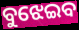
ବୁଝେଇବ